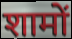
शामों